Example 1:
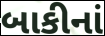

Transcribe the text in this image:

બાકીનાં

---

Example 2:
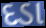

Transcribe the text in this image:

દડા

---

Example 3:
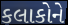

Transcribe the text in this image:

કલાકોને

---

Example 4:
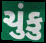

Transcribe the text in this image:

ચુંકુ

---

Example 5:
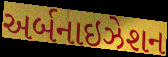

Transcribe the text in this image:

અર્બનાઇઝેશન